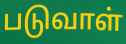
படுவாள்